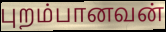
புறம்பானவன்